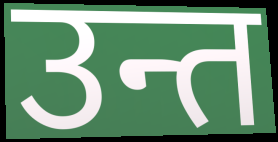
उन्त